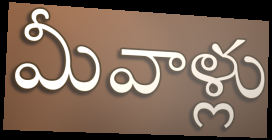
మీవాళ్లు